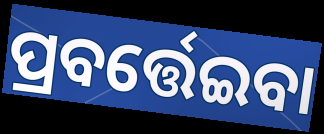
ପ୍ରବର୍ତ୍ତେଇବା